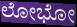
ಲೋಭೋ